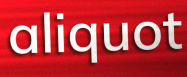
aliquot